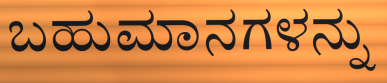
ಬಹುಮಾನಗಳನ್ನು